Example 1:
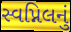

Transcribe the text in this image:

સ્વપ્નિલનું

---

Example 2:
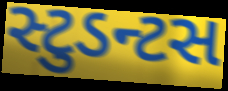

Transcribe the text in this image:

સ્ટુડન્ટસ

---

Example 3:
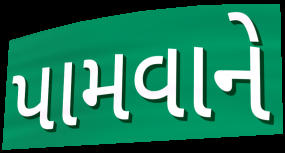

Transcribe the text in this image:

પામવાને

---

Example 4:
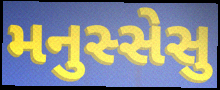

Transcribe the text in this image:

મનુસ્સેસુ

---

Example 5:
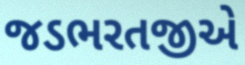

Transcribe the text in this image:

જડભરતજીએ